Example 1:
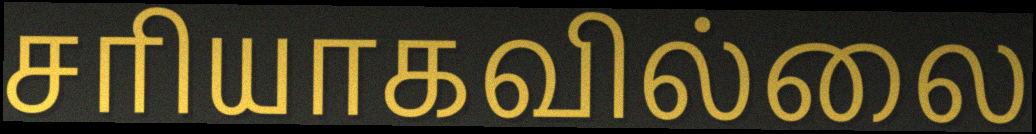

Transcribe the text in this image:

சரியாகவில்லை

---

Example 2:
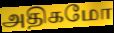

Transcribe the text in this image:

அதிகமோ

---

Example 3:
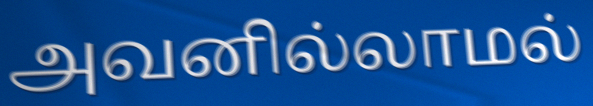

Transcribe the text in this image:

அவனில்லாமல்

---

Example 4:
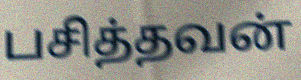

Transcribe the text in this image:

பசித்தவன்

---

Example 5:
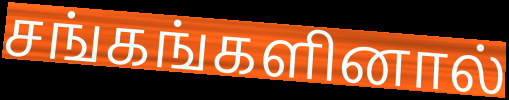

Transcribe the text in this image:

சங்கங்களினால்